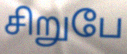
சிறுபே